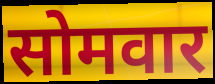
सोमवार